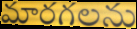
మారగలను